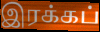
இரக்கப்